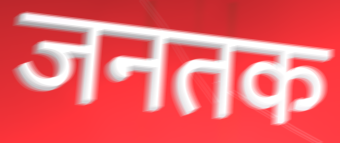
जनतक